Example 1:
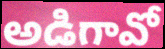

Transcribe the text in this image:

అడిగావో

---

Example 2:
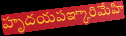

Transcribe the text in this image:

హృదయపఞ్కారిమేహి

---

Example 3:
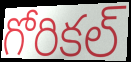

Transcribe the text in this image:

గోరికల్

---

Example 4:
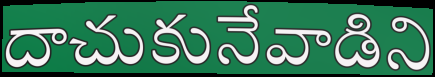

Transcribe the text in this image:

దాచుకునేవాడిని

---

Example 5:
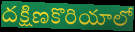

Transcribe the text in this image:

దక్షిణకొరియాలో